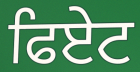
ਫਿਏਟ